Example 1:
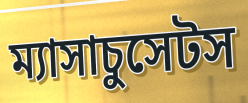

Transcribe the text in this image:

ম্যাসাচুসেটস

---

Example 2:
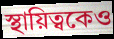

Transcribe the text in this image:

স্থায়িত্বকেও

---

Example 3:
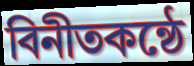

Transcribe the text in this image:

বিনীতকন্ঠে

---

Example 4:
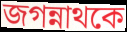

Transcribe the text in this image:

জগন্নাথকে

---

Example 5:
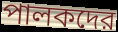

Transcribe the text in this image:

পালকদের